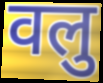
वलु